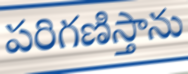
పరిగణిస్తాను